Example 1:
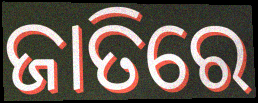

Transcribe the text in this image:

ଜାତିରେ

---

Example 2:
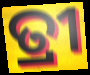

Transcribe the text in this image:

ତ୍ରୀ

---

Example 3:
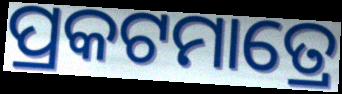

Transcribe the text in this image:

ପ୍ରକଟମାତ୍ରେ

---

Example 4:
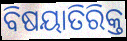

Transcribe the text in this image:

ବିଷୟାତିରିକ୍ତ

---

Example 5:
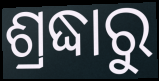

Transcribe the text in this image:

ଶ୍ରଦ୍ଧାରୁ